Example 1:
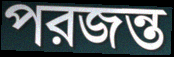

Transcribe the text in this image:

পরজন্ত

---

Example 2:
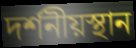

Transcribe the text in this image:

দর্শনীয়স্থান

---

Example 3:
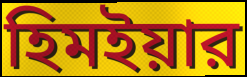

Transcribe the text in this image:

হিমইয়ার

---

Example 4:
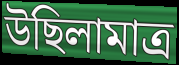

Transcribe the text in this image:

উছিলামাত্র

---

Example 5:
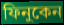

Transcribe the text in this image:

ফিনুকেন